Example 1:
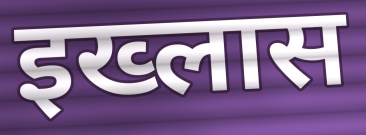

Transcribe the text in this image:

इख्लास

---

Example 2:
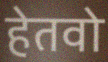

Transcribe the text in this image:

हेतवो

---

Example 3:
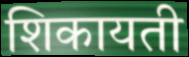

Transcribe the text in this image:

शिकायती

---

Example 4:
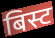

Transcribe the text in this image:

बिस्ट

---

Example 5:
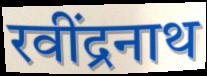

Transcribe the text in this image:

रवींद्रनाथ